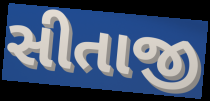
સીતાજી